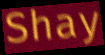
Shay